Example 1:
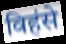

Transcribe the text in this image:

विहंसे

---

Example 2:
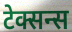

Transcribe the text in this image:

टेक्सन्स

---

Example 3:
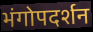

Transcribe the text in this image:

भंगोपदर्शन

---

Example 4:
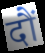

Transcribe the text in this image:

दौं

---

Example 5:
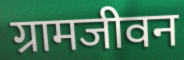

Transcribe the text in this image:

ग्रामजीवन